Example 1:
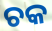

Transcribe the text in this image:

ଚକ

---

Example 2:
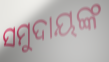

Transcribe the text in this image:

ସମୁଦାୟଙ୍କ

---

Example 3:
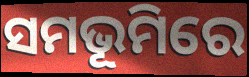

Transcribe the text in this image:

ସମଭୂମିରେ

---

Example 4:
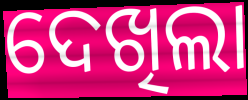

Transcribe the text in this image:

ଦେଖିଲା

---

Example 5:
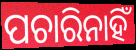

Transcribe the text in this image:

ପଚାରିନାହିଁ